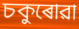
চকুৰোৱা